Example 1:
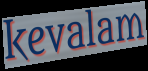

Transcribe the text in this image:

kevalam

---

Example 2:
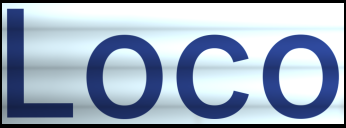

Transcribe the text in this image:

Loco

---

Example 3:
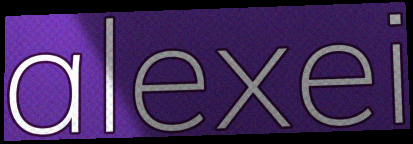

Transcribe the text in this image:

alexei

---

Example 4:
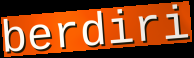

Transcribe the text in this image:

berdiri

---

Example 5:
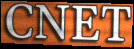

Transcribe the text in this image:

CNET